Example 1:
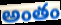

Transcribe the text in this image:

అంతం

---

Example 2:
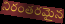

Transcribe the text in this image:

నిరంతరమైన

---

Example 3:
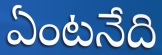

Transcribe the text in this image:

ఏంటనేది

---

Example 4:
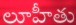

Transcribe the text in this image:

లూహీతు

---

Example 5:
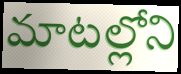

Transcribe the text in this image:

మాటల్లోని